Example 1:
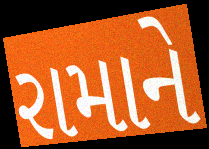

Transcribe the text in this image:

રામાને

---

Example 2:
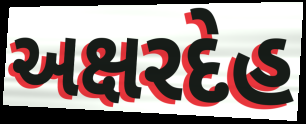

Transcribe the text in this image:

અક્ષરદેહ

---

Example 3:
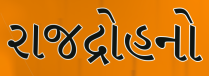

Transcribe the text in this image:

રાજદ્રોહનો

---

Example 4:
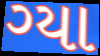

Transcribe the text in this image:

ગ્યા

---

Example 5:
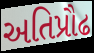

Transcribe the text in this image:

અતિપ્રૌઢ